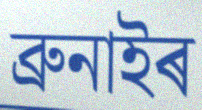
ব্ৰুনাইৰ